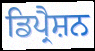
ਡਿਪ੍ਰੈਸ਼ਨ